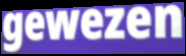
gewezen